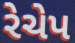
રેચેપ